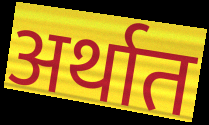
अर्थात